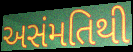
અસંમતિથી